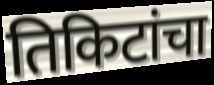
तिकिटांचा